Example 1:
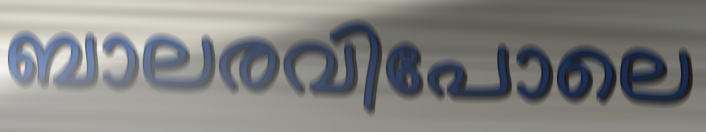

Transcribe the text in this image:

ബാലരവിപോലെ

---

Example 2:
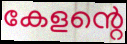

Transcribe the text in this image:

കേളന്റെ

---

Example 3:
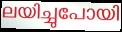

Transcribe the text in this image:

ലയിച്ചുപോയി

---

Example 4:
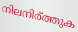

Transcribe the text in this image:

നിലനിര്ത്തുക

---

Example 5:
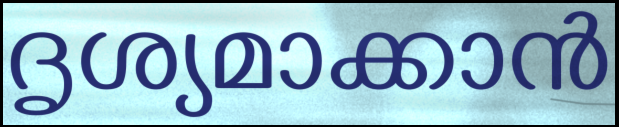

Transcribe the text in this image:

ദൃശ്യമാക്കാൻ